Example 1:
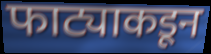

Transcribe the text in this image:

फाट्याकडून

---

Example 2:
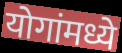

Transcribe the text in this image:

योगांमध्ये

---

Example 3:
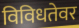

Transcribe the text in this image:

विविधतेवर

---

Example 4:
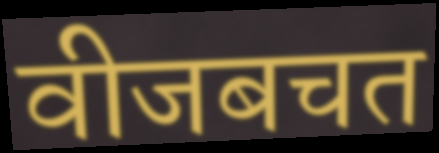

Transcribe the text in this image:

वीजबचत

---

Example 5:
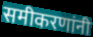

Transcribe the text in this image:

समीकरणांनी